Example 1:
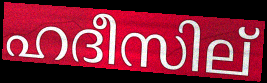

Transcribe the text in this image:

ഹദീസില്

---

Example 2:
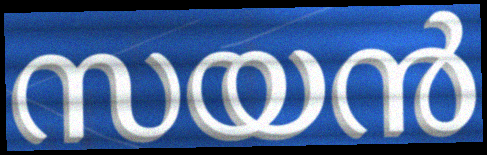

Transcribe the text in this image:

സയൻ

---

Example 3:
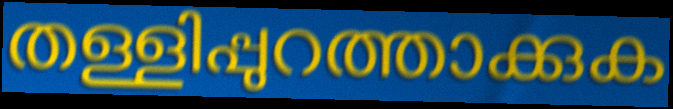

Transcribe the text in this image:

തള്ളിപ്പുറത്താക്കുക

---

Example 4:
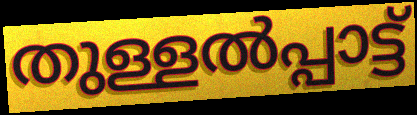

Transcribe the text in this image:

തുള്ളൽപ്പാട്ട്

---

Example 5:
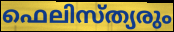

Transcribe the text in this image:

ഫെലിസ്ത്യരും